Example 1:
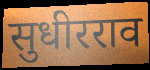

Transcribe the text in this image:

सुधीरराव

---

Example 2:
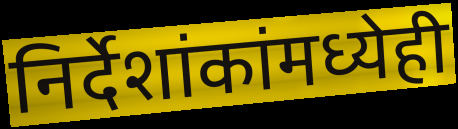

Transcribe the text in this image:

निर्देशांकांमध्येही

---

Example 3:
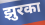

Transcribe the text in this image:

झुरका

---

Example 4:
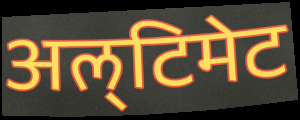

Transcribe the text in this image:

अल्टिमेट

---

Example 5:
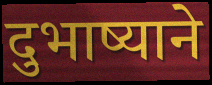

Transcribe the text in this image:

दुभाष्याने